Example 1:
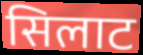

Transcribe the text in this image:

सिलाट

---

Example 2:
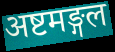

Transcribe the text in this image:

अष्टमङ्गल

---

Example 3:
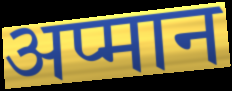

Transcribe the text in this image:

अप्मान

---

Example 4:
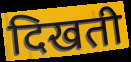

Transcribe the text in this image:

दिखती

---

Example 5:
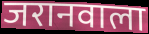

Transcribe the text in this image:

जरानवाला